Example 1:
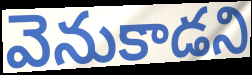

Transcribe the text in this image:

వెనుకాడని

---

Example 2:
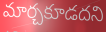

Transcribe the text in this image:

మార్చకూడదని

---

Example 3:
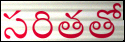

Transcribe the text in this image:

సరితతో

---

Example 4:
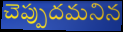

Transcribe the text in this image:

చెప్పుదమనిన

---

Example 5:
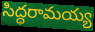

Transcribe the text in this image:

సిద్ధరామయ్య